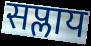
सप्लाय